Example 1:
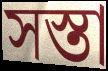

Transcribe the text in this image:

সস্তা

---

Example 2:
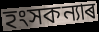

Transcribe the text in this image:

হংসকন্যাৰ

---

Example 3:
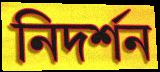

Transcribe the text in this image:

নিদৰ্শন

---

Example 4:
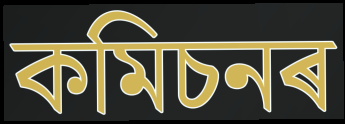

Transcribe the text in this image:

কমিচনৰ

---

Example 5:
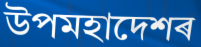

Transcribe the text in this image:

উপমহাদেশৰ